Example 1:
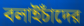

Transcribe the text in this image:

বলাইচাঁদের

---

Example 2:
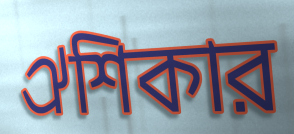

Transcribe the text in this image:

ঐশিকার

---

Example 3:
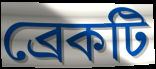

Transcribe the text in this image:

ব্রেকটি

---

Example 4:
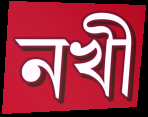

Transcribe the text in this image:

নখী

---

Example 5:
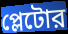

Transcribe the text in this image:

প্লেটোর